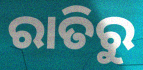
ରାତିରୁ